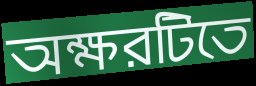
অক্ষরটিতে